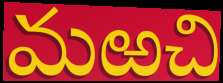
మఱచి